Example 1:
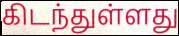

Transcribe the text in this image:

கிடந்துள்ளது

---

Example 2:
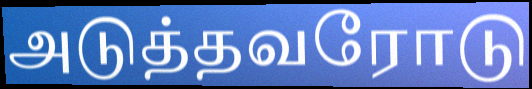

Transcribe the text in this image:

அடுத்தவரோடு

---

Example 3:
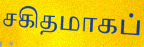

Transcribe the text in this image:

சகிதமாகப்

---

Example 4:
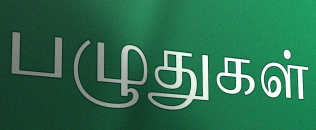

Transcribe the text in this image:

பழுதுகள்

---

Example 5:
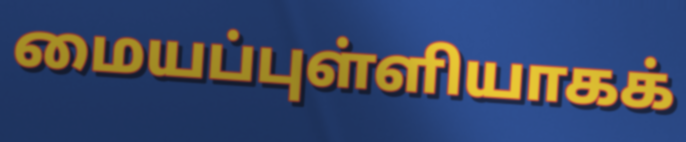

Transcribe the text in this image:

மையப்புள்ளியாகக்